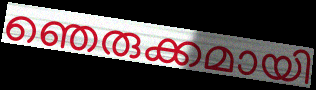
ഞെരുക്കമായി